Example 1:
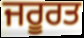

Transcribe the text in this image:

ਜਰੂਰਤ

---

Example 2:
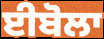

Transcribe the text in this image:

ਈਬੋਲਾ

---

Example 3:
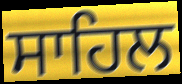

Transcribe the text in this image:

ਸਾਹਿਲ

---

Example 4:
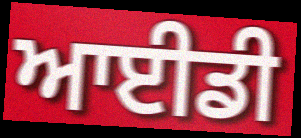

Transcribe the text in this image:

ਆਈਡੀ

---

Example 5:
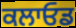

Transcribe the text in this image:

ਕਲਾਓਡ